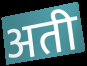
अती